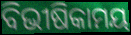
ବିଭୀଷିକାମୟ